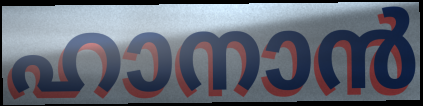
ഹാനാൻ